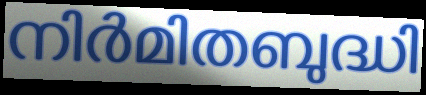
നിർമിതബുദ്ധി